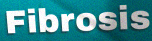
Fibrosis